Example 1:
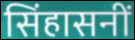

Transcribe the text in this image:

सिंहासनीं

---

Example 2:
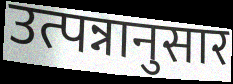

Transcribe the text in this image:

उत्पन्नानुसार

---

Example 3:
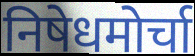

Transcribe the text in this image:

निषेधमोर्चा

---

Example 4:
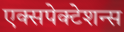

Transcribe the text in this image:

एक्सपेक्टेशन्स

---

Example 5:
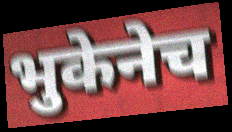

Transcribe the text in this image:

भुकेनेच